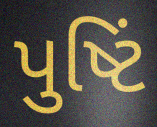
પુષ્ટિં